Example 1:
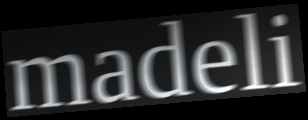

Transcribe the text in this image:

madeli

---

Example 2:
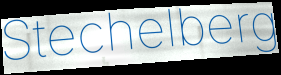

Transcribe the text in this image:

Stechelberg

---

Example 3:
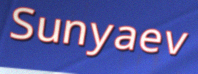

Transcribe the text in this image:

Sunyaev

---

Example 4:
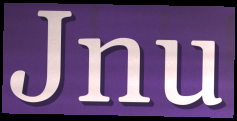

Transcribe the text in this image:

Jnu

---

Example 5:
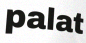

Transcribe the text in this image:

palat